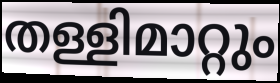
തള്ളിമാറ്റും